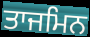
ਤਾਜਮਿਨ